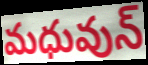
మధువున్